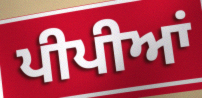
ਪੀਪੀਆਂ